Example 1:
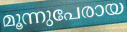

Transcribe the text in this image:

മൂന്നുപേരായ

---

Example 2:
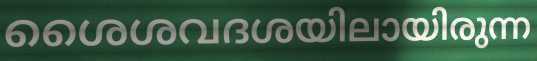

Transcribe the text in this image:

ശൈശവദശയിലായിരുന്ന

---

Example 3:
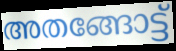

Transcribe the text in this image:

അതങ്ങോട്ട്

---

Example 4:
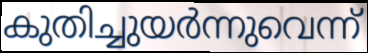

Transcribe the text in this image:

കുതിച്ചുയർന്നുവെന്ന്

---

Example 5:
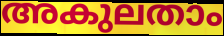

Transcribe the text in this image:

അകുലതാം